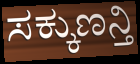
ಸಕ್ಕುಣನ್ತಿ